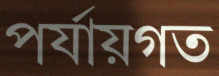
পর্যায়গত